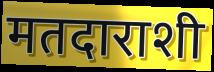
मतदाराशी